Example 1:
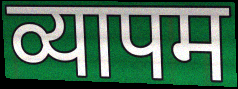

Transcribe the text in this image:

व्यापम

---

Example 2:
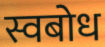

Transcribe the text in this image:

स्वबोध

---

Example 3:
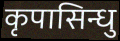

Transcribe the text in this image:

कृपासिन्धु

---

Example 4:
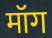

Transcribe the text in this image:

मॉग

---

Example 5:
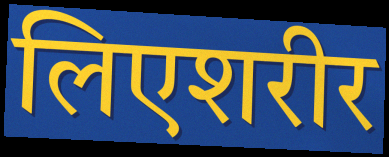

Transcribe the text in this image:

लिएशरीर